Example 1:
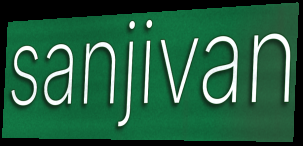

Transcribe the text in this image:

sanjivan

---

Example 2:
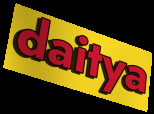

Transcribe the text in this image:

daitya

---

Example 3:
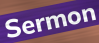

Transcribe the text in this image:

Sermon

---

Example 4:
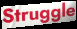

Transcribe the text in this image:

Struggle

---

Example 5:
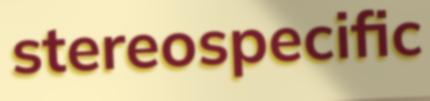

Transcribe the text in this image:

stereospecific